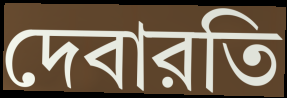
দেবারতি